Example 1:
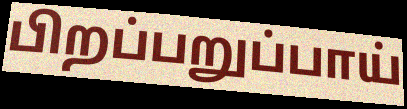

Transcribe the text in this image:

பிறப்பறுப்பாய்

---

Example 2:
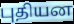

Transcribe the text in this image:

புதியன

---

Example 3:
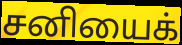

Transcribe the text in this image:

சனியைக்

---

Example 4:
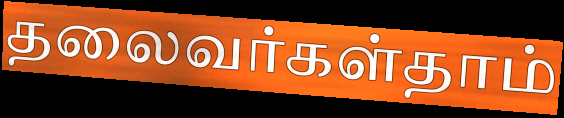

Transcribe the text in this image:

தலைவர்கள்தாம்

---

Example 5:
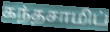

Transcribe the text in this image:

கந்தசாமிப்